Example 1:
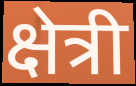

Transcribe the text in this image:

क्षेत्री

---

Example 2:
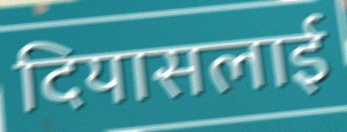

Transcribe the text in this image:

दियासलाई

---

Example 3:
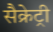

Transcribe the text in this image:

सैक्रेट्री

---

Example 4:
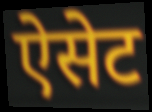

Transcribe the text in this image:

ऐसेट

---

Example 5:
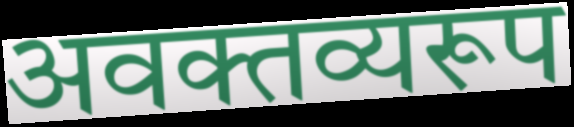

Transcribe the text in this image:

अवक्तव्यरूप